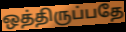
ஒத்திருப்பதே